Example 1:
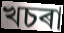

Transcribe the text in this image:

খচৰা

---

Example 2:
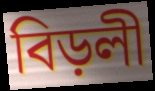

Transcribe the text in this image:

বিড়লী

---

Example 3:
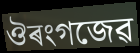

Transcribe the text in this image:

ঔৰংগজেৱ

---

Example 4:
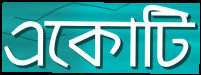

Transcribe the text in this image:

একোটি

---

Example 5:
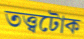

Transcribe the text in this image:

তত্ত্বটোক